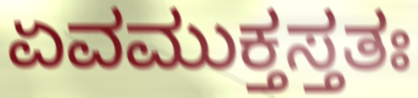
ಏವಮುಕ್ತಸ್ತತಃ